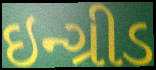
ઇન્ગ્રીડ